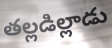
తల్లడిల్లాడు